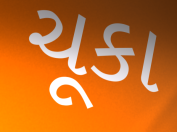
ચૂકા